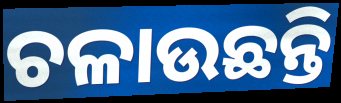
ଚଳାଉଛନ୍ତି